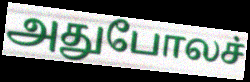
அதுபோலச்